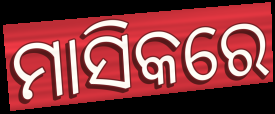
ମାସିକରେ